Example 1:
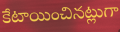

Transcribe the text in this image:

కేటాయించినట్లుగా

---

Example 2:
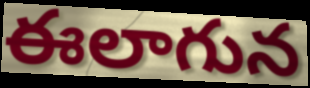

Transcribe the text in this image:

ఈలాగున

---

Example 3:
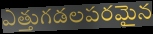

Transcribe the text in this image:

ఎత్తుగడలపరమైన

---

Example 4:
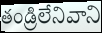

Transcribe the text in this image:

తండ్రిలేనివాని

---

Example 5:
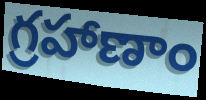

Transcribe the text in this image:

గ్రహాణాం